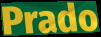
Prado